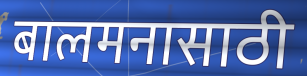
बालमनासाठी